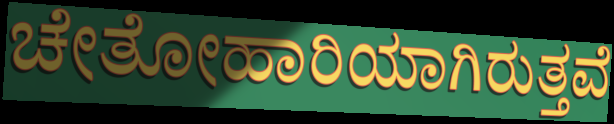
ಚೇತೋಹಾರಿಯಾಗಿರುತ್ತವೆ